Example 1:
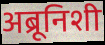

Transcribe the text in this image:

अब्रूनिशी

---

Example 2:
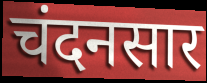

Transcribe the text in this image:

चंदनसार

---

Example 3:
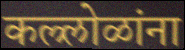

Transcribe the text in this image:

कल्लोळांना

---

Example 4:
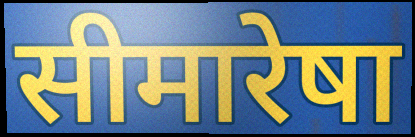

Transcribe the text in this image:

सीमारेषा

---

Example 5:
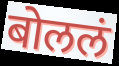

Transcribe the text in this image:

बोललं